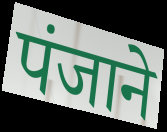
पंजाने